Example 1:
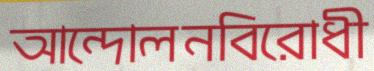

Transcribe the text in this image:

আন্দোলনবিরোধী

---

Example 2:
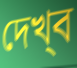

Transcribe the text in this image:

দেখ্‌ব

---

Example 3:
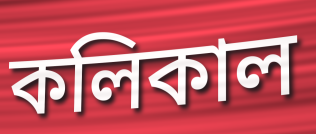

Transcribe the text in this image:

কলিকাল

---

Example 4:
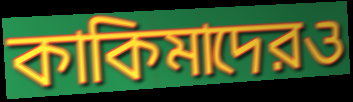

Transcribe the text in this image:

কাকিমাদেরও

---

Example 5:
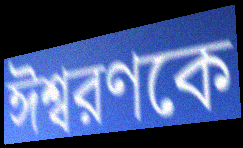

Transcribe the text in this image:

ঈশ্বরণকে